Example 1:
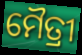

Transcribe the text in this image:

ମୈତ୍ରୀ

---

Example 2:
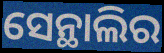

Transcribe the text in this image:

ସେନ୍ଥାଲିର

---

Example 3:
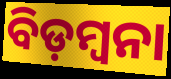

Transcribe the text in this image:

ବିଡ଼ମ୍ୱନା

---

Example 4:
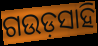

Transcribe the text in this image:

ଗଉଡ଼ସାହି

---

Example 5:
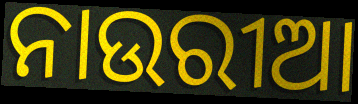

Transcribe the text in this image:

ନାଉରୀଆ